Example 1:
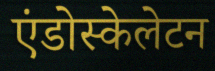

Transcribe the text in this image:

एंडोस्केलेटन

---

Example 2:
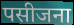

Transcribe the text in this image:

पसीजना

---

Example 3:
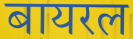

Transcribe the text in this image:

बायरल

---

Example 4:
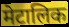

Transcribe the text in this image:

मेटालिक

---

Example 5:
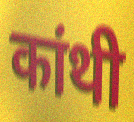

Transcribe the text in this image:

कांथी